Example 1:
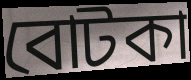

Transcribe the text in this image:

বোটকা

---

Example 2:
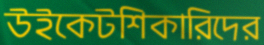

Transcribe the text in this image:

উইকেটশিকারিদের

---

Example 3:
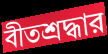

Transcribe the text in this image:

বীতশ্রদ্ধার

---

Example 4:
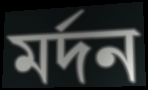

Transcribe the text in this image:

মর্দন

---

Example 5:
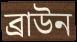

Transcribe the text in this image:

ব্রাউন